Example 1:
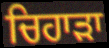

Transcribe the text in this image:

ਚਿਹਾੜਾ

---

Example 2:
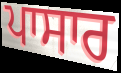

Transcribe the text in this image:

ਪਾਸਾਰ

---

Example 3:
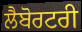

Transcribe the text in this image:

ਲੈਬੋਰਟਰੀ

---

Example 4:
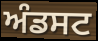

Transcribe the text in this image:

ਅੰਡਸਟ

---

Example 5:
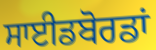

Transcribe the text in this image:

ਸਾਈਡਬੋਰਡਾਂ